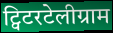
ट्विटरटेलीग्राम